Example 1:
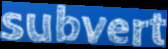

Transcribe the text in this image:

subvert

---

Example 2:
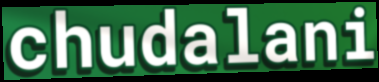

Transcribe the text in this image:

chudalani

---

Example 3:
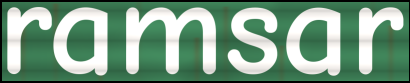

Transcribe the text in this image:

ramsar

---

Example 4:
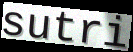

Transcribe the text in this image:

sutri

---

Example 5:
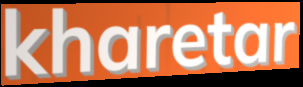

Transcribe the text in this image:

kharetar